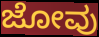
ಜೋವು